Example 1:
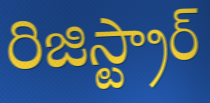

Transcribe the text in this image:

రిజిస్ట్రార్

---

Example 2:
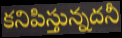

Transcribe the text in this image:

కనిపిస్తున్నదనీ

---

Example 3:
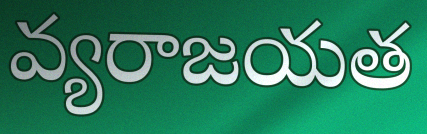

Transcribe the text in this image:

వ్యరాజయత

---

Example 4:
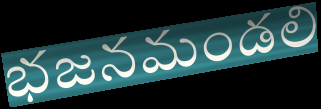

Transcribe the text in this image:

భజనమండలి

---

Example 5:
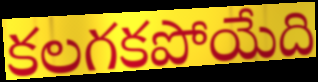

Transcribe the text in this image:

కలగకపోయేది